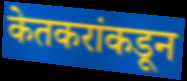
केतकरांकडून